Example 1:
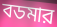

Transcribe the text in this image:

বডমার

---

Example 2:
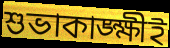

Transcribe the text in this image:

শুভাকাঙ্ক্ষীই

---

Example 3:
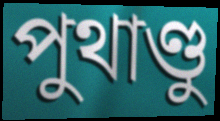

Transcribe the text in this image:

পুথাণ্ডু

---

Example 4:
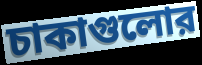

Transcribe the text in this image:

চাকাগুলোর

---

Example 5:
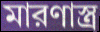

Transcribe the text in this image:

মারণাস্ত্র